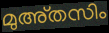
മുഅ്തസിം